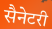
सैनेटरी